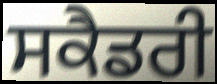
ਸਕੈਡਰੀ